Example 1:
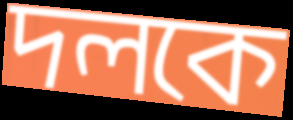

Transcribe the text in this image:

দলকে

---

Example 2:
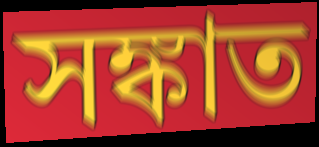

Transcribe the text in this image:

সঙ্কাত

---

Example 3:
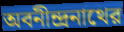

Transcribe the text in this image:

অবনীন্দ্রনাথের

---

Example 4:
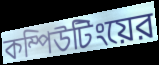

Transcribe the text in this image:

কম্পিউটিংয়ের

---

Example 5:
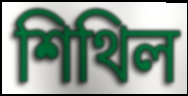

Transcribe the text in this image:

শিথিল